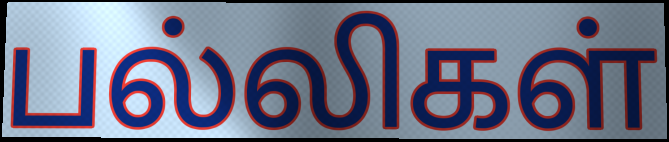
பல்லிகள்